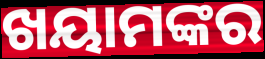
ଖୟାମଙ୍କର